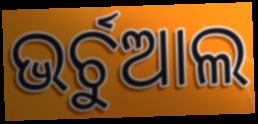
ଭର୍ଚୁଆଲ